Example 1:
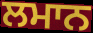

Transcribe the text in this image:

ਲਮਾਨ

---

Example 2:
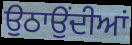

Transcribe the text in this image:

ਉਠਾਉਂਦੀਆਂ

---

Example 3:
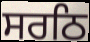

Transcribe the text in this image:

ਸਰਠਿ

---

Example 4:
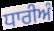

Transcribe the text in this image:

ਧਾਰੀਅੰ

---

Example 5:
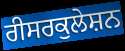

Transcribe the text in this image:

ਰੀਸਰਕੁਲੇਸ਼ਨ